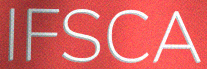
IFSCA